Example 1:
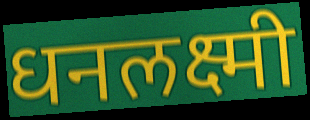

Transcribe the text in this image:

धनलक्ष्मी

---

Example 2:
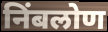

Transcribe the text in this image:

निंबलोण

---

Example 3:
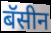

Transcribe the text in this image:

बॅसीन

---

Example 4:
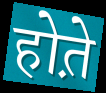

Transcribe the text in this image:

होत़े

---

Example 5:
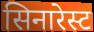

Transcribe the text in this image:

सिनारेस्ट